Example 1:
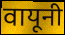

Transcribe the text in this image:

वायूनी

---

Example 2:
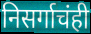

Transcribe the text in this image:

निसर्गाचंही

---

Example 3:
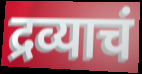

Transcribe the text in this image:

द्रव्याचं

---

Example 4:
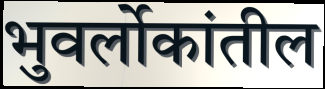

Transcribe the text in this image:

भुवर्लोकांतील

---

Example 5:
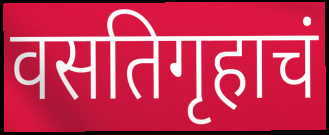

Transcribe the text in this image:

वसतिगृहाचं